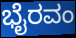
ಭೈರವಂ